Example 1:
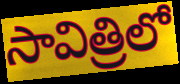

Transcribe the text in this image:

సావిత్రిలో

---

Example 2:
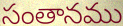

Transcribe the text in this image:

సంతానము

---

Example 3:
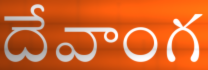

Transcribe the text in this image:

దేవాంగ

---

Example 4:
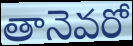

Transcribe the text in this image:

తానెవరో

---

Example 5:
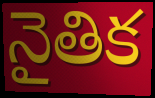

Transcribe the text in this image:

నైతిక